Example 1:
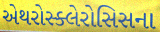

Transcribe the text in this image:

એથરોસ્ક્લેરોસિસના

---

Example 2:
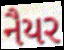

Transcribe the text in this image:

નૈયર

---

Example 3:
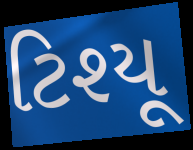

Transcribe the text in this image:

ટિશ્યૂ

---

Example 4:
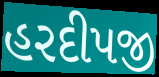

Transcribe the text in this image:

હરદીપજી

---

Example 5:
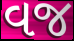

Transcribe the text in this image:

વજ